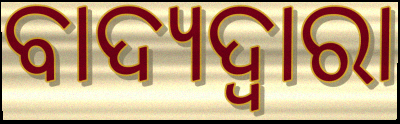
ବାଦ୍ୟଦ୍ୱାରା